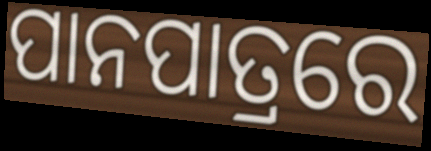
ପାନପାତ୍ରରେ